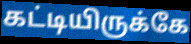
கட்டியிருக்கே